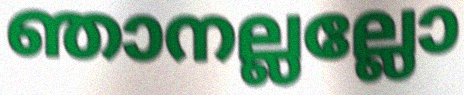
ഞാനല്ലല്ലോ